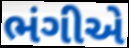
ભંગીએ